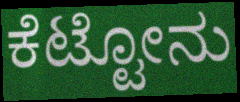
ಕೆಟ್ಟೋನು